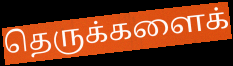
தெருக்களைக்